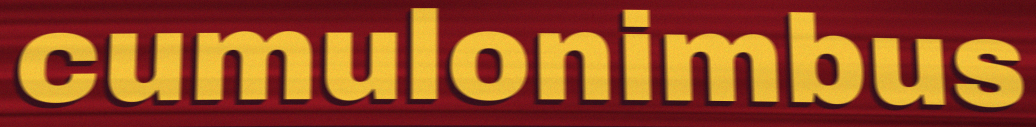
cumulonimbus